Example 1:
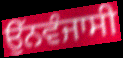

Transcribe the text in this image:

ਉੱਨਵੰਜਾਸੀ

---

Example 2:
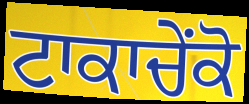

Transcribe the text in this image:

ਟਾਕਾਚੇਂਕੋ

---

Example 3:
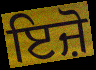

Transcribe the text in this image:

ਇਜ਼ੋ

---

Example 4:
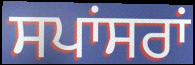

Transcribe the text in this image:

ਸਪਾਂਸਰਾਂ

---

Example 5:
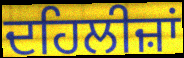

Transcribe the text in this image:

ਦਹਿਲੀਜ਼ਾਂ